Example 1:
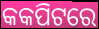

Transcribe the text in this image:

କକପିଟରେ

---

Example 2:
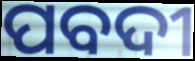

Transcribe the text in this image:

ପବଦୀ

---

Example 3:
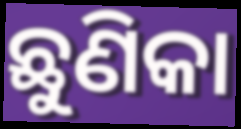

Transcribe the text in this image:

ଛୁଣିକା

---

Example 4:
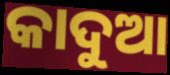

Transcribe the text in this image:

କାଦୁଆ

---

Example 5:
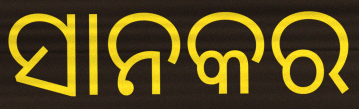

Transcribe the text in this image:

ସାନକର